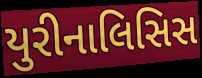
યુરીનાલિસિસ